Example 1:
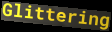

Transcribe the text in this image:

Glittering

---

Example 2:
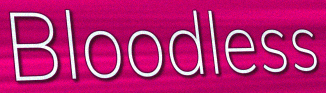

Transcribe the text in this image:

Bloodless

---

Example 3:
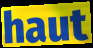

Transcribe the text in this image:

haut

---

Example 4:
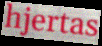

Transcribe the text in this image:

hjertas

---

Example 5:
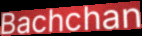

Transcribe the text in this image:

Bachchan